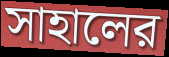
সাহালের